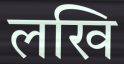
लखि